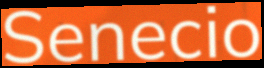
Senecio